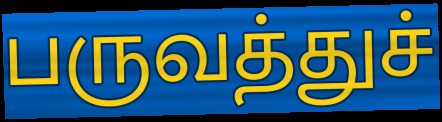
பருவத்துச்